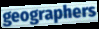
geographers